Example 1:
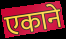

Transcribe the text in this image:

एकाने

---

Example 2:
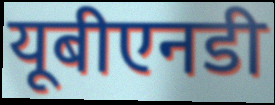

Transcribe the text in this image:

यूबीएनडी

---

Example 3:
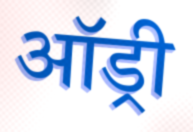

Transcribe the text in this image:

ऑड्री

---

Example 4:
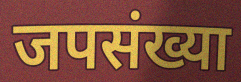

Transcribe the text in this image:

जपसंख्या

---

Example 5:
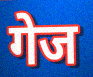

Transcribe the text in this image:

गेज